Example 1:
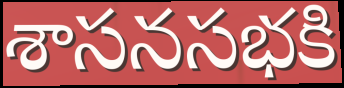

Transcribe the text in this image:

శాసనసభకి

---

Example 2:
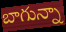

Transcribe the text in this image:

బాగున్నా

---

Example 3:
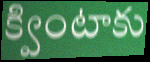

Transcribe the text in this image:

క్వింటాకు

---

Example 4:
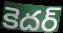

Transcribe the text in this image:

కెదర్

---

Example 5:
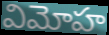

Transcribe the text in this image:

విమోహ